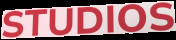
STUDIOS